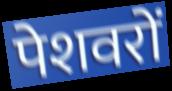
पेशवरों